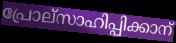
പ്രോല്സാഹിപ്പിക്കാന്